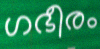
ഗഭീരം